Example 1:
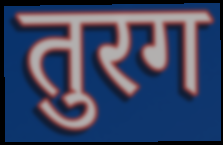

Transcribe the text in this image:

तुरग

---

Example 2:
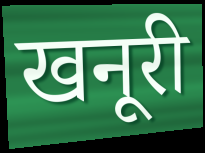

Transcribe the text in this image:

खनूरी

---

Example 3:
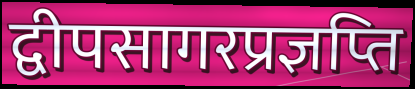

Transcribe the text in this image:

द्वीपसागरप्रज्ञप्ति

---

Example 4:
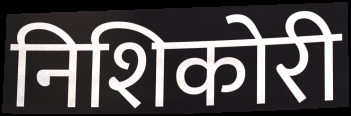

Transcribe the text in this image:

निशिकोरी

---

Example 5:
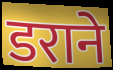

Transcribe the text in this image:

डराने